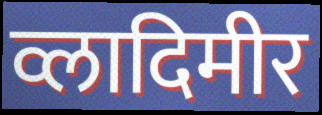
व्लादिमीर